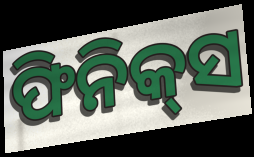
ଫିନିକ୍‍ସ